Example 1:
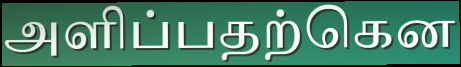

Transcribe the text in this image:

அளிப்பதற்கென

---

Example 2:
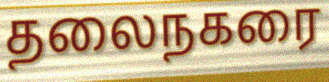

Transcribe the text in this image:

தலைநகரை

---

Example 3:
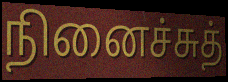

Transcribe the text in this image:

நினைச்சுத்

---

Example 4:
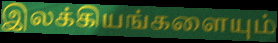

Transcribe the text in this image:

இலக்கியங்களையும்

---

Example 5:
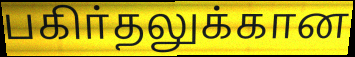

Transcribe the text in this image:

பகிர்தலுக்கான